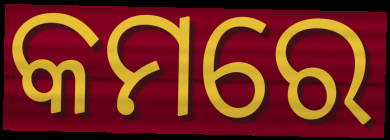
କମରେ